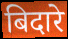
बिदारे